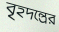
বৃহদন্ত্রের